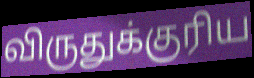
விருதுக்குரிய